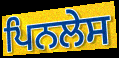
ਪਿਨਲੇਸ